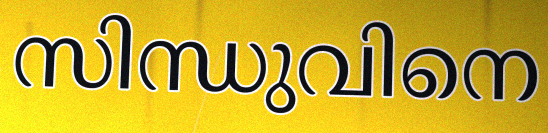
സിന്ധുവിനെ